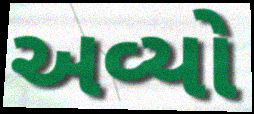
અવ્યો